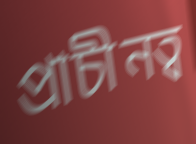
প্ৰাচীনত্ব